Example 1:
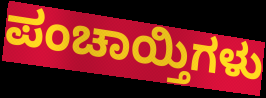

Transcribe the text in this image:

ಪಂಚಾಯ್ತಿಗಳು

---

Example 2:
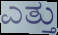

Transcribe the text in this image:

ಎತ್ತು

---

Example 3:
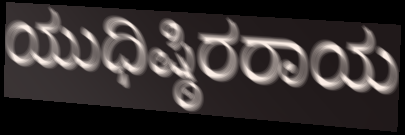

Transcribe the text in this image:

ಯುಧಿಷ್ಠಿರರಾಯ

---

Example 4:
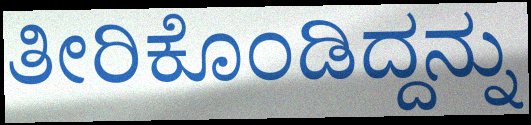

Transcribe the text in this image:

ತೀರಿಕೊಂಡಿದ್ದನ್ನು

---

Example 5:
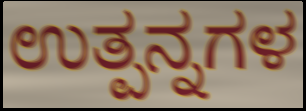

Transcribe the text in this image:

ಉತ್ಪನ್ನಗಳ